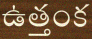
ఉత్తంక